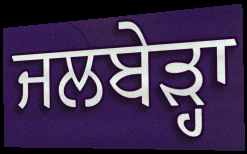
ਜਲਬੇੜ੍ਹਾ